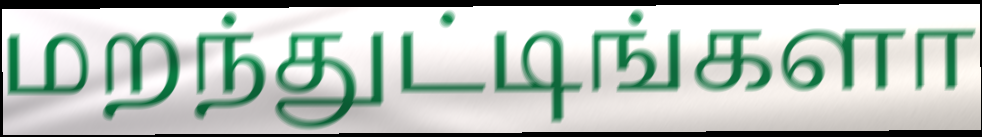
மறந்துட்டிங்களா